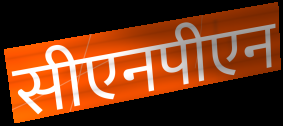
सीएनपीएन